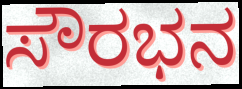
ಸೌರಭನ